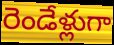
రెండేళ్లుగా